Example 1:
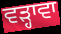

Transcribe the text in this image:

ਵੜ੍ਹਾਵਾ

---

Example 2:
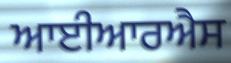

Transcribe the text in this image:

ਆਈਆਰਐਸ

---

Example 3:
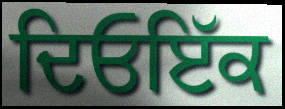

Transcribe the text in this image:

ਦਿਓਇੱਕ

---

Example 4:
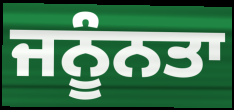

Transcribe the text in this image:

ਜਨੂੰਨਤਾ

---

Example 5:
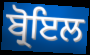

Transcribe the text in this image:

ਬ੍ਰੋਇਲ